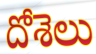
దోశెలు